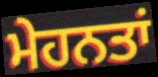
ਮੇਹਨਤਾਂ